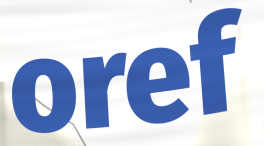
oref